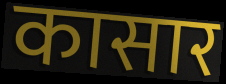
कासार